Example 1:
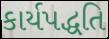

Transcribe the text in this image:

કાર્યપદ્ધતિ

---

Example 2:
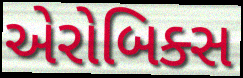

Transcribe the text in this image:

એરોબિક્સ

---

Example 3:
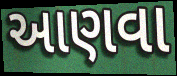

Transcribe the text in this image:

આણવા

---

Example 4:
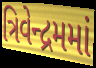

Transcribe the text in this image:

ત્રિવેન્દ્રમમાં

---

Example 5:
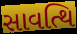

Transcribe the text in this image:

સાવત્થિ